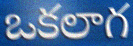
ఒకలాగ